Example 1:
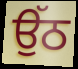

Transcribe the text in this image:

ਉੱਠ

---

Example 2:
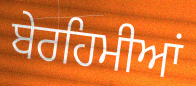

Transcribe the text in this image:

ਬੇਰਹਿਮੀਆਂ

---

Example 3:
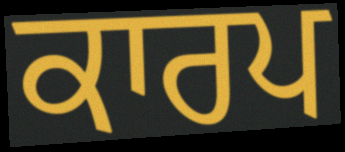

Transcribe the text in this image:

ਕਾਰਪ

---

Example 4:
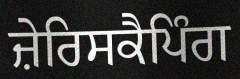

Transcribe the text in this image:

ਜ਼ੇਰਿਸਕੈਪਿੰਗ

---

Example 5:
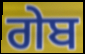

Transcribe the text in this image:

ਗੇਬ